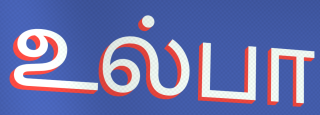
உல்பா